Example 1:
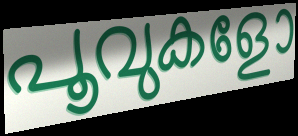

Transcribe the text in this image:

പൂവുകളോ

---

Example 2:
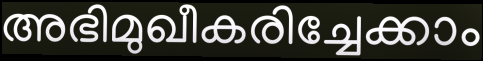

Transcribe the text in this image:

അഭിമുഖീകരിച്ചേക്കാം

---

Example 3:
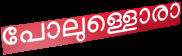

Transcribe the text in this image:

പോലുള്ളൊരാ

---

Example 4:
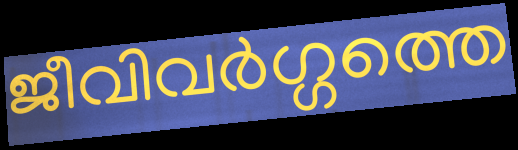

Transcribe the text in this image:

ജീവിവർഗ്ഗത്തെ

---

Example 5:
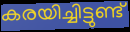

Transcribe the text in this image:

കരയിച്ചിട്ടുണ്ട്